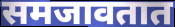
समजावतात